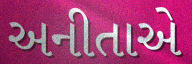
અનીતાએ